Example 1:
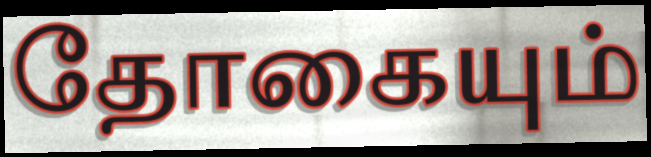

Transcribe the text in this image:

தோகையும்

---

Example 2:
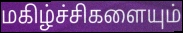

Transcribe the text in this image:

மகிழ்ச்சிகளையும்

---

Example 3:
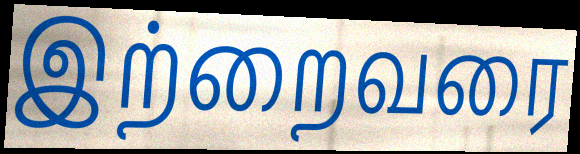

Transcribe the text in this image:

இற்றைவரை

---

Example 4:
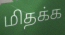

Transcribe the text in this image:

மிதக்க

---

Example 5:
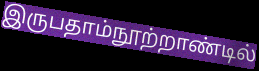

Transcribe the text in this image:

இருபதாம்நூற்றாண்டில்